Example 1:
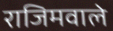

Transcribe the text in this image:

राजिमवाले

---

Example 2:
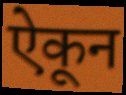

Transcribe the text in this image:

ऐकून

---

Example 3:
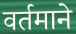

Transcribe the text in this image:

वर्तमाने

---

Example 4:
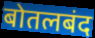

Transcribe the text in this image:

बोतलबंद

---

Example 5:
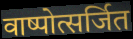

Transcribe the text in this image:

वाष्पोत्सर्जित